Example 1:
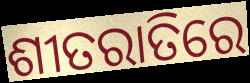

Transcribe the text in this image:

ଶୀତରାତିରେ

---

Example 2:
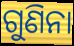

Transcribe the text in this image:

ଗୁଣିନା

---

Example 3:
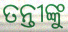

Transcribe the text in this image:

ତନ୍ତୀଙ୍କୁ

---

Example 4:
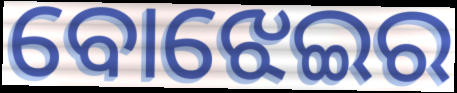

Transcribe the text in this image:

ବୋଝେଇର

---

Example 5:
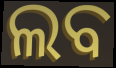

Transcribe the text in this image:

ଲବ